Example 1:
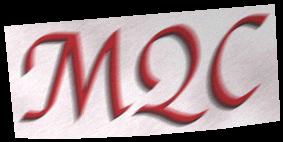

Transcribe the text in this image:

MQC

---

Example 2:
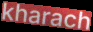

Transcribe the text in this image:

kharach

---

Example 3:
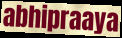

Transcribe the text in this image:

abhipraaya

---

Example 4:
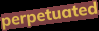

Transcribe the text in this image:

perpetuated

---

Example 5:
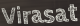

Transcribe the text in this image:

Virasat